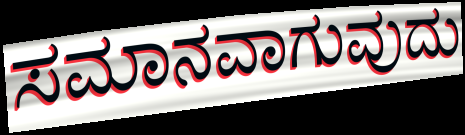
ಸಮಾನವಾಗುವುದು